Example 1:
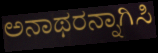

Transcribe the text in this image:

ಅನಾಥರನ್ನಾಗಿಸಿ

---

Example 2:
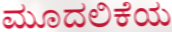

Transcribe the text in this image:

ಮೂದಲಿಕೆಯ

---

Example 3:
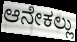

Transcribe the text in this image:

ಆನೇಕಲ್ಲು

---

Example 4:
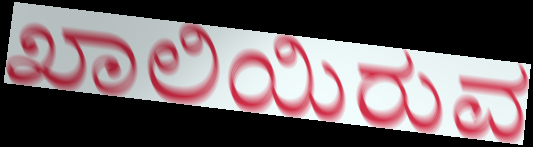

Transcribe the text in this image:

ಖಾಲಿಯಿರುವ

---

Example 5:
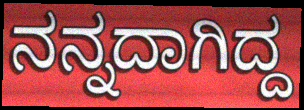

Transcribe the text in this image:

ನನ್ನದಾಗಿದ್ದ